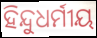
ହିନ୍ଦୁଧର୍ମୀୟ